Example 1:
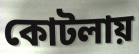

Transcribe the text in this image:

কোটলায়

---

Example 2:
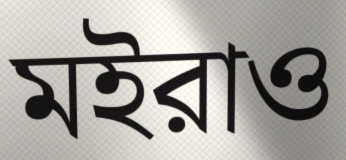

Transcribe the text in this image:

মইরাও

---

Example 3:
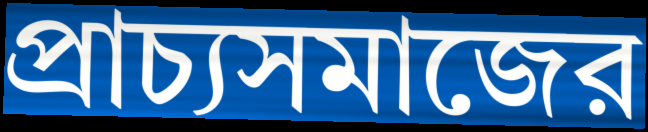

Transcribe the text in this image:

প্রাচ্যসমাজের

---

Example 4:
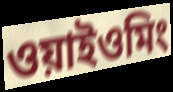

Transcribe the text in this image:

ওয়াইওমিং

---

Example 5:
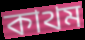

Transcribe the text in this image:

কাথম